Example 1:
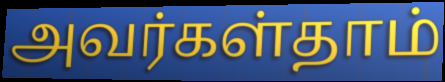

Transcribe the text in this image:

அவர்கள்தாம்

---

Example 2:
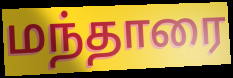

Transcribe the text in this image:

மந்தாரை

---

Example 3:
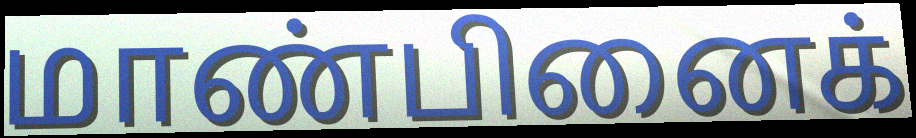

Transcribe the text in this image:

மாண்பினைக்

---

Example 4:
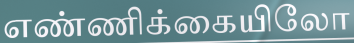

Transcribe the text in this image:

எண்ணிக்கையிலோ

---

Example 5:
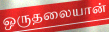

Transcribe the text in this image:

ஒருதலையான்